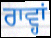
ਰਾਵ੍ਹਾਂ